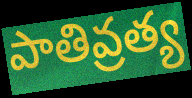
పాతివ్రత్య